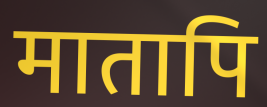
मातापि